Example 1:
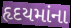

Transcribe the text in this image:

હૃદયમાંના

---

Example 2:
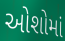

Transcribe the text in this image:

ઓશોમાં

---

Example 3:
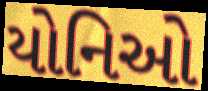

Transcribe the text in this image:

યોનિઓ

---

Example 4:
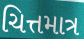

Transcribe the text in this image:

ચિત્તમાત્ર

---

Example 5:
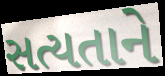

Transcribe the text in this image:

સત્યતાને